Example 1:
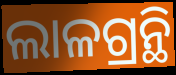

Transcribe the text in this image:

ଲାଳଗ୍ରନ୍ଥି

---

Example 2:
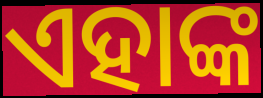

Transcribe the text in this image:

ଏହାଙ୍କ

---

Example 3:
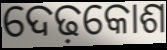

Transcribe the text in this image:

ଦେଢ଼କୋଶ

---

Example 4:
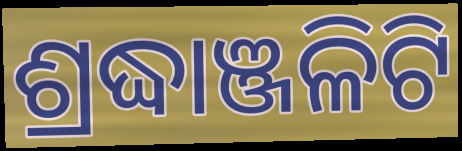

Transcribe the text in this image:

ଶ୍ରଦ୍ଧାଞ୍ଜଳିଟି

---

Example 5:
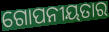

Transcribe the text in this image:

ଗୋପନୀୟତାର